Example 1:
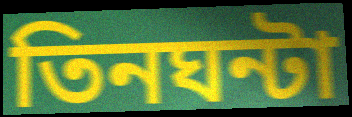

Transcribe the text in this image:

তিনঘন্টা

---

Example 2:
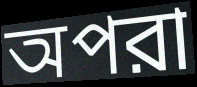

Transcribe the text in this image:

অপরা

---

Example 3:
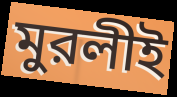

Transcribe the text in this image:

মুরলীই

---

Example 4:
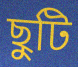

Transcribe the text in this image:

ছুটি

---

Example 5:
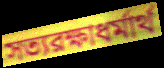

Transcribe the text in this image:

সত্যরক্ষাধর্মার্থ